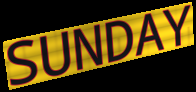
SUNDAY